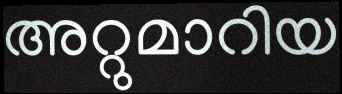
അറ്റുമാറിയ